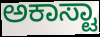
ಅಕಾಸ್ಟಾ